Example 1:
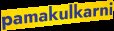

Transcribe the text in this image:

pamakulkarni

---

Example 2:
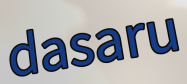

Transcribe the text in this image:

dasaru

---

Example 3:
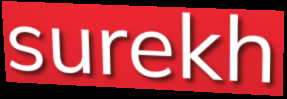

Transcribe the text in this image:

surekh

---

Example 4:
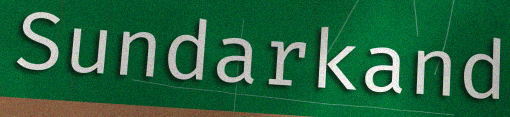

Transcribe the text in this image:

Sundarkand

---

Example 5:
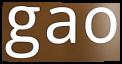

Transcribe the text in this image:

gao